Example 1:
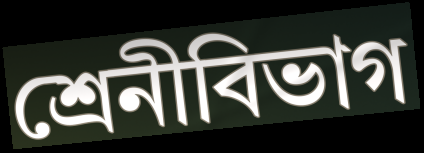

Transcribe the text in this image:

শ্রেনীবিভাগ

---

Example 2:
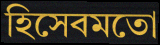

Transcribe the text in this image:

হিসেবমতো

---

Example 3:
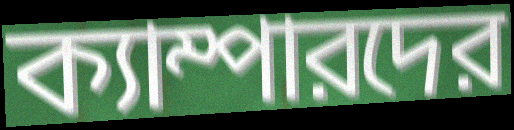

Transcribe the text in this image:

ক্যাম্পারদের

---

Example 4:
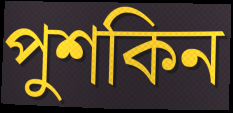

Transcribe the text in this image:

পুশকিন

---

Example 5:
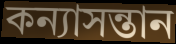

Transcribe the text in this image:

কন্যাসন্তান